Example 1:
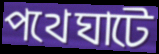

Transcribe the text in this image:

পথেঘাটে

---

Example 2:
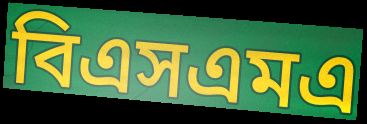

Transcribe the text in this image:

বিএসএমএ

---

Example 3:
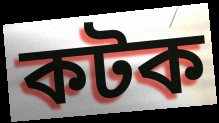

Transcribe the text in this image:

কটক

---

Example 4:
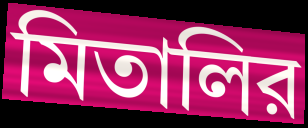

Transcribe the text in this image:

মিতালির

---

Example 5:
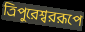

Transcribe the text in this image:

ত্রিপুরেশ্বররূপে